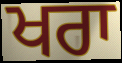
ਖਰਾ